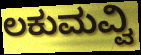
ಲಕುಮವ್ವಿ